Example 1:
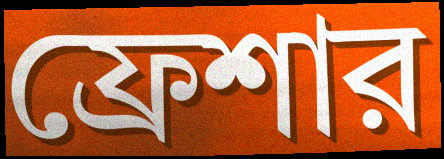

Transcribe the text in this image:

ফ্রেশার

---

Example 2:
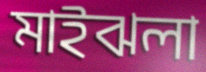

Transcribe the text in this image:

মাইঝলা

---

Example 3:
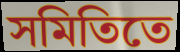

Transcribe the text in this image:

সমিতিতে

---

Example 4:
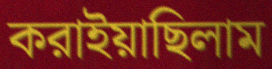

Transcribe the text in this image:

করাইয়াছিলাম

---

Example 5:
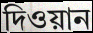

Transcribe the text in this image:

দিওয়ান